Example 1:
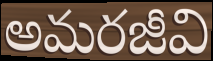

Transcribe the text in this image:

అమరజీవి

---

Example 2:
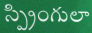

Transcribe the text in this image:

స్ప్రింగులా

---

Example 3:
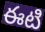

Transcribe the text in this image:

ఈటి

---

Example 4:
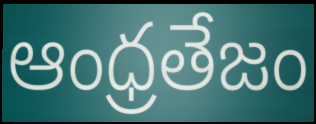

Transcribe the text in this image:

ఆంధ్రతేజం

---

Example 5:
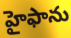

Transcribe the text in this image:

హైఫాను